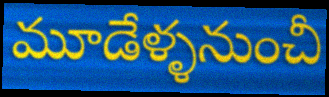
మూడేళ్ళనుంచీ